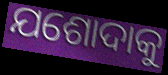
ଯଶୋଦାକୁ